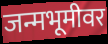
जन्मभूमीवर